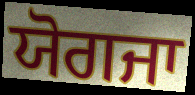
ਯੋਗਜਾ